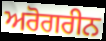
ਅਰੋਗਰੀਨ